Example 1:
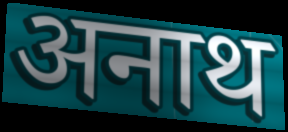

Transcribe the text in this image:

अनाथ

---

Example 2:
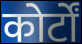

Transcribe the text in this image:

कोर्टों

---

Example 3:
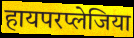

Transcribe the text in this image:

हायपरप्लेजिया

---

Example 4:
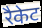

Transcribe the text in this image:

रैकेट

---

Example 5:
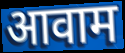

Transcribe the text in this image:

आवाम